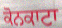
ਕੋਨਕਾਟਾ